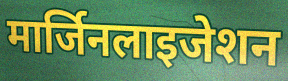
मार्जिनलाइजेशन